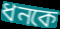
ধনকে